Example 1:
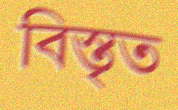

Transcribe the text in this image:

বিস্তৃত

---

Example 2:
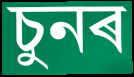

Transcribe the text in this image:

চুনৰ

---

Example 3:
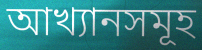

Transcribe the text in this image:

আখ্যানসমূহ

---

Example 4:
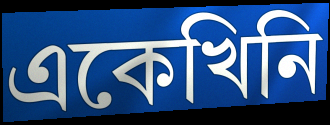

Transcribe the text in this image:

একেখিনি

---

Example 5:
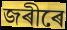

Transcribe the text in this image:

জৰীৰে